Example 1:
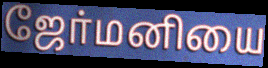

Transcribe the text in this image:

ஜேர்மனியை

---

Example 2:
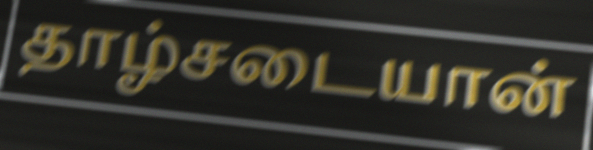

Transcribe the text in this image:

தாழ்சடையான்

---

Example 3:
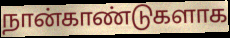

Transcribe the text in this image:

நான்காண்டுகளாக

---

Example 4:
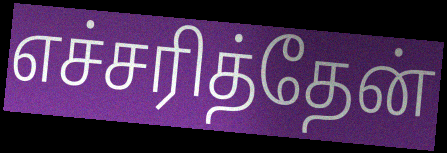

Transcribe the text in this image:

எச்சரித்தேன்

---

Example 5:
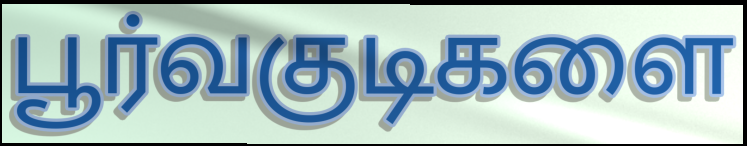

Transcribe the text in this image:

பூர்வகுடிகளை